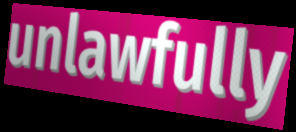
unlawfully